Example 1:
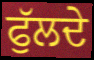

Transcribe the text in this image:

ਫੁੱਲਦੇ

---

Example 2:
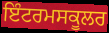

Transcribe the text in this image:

ਇੰਟਰਮਸਕੂਲਰ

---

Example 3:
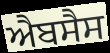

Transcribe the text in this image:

ਐਬਸੈਸ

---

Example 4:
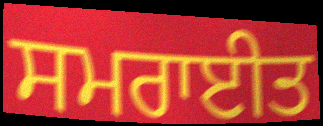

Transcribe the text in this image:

ਸਮਰਾਈਤ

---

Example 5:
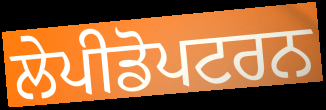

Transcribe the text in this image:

ਲੇਪੀਡੋਪਟਰਨ